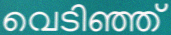
വെടിഞ്ഞ്